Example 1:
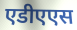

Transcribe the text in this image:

एडीएएस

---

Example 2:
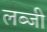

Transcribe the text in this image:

लब्जी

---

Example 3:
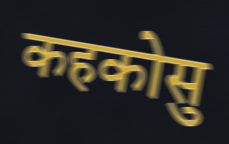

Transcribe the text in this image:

कहकोसु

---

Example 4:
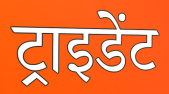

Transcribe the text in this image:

ट्राइडेंट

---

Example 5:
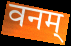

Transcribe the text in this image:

वनम्